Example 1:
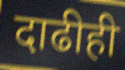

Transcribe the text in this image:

दाढीही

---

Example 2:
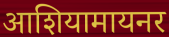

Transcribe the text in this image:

आशियामायनर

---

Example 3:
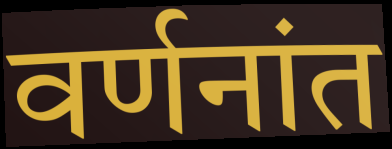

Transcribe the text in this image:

वर्णनांत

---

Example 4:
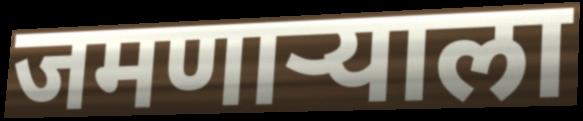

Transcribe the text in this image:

जमणाऱ्याला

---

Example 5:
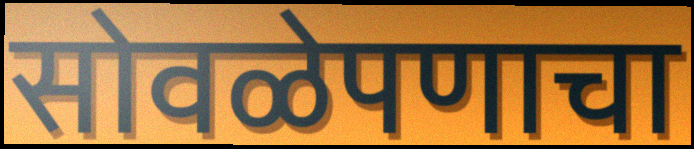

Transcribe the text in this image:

सोवळेपणाचा